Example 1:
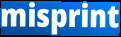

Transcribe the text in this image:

misprint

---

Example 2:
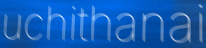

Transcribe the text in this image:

uchithanai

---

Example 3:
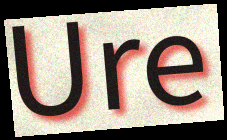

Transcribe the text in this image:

Ure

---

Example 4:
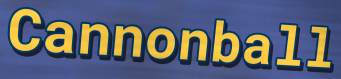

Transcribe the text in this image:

Cannonball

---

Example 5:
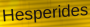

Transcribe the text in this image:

Hesperides